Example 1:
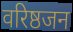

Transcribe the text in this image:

वरिष्ठजन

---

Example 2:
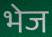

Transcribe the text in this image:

भेज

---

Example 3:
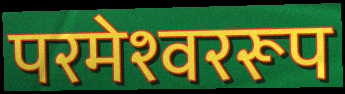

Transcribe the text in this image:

परमेश्वररूप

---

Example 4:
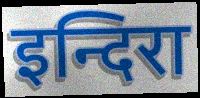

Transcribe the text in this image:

इन्दिरा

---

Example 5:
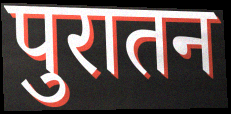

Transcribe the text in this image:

पुरातन